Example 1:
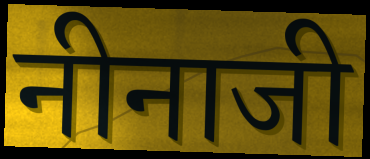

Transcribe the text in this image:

नीनाजी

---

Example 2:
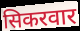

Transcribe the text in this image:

सिकरवार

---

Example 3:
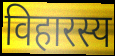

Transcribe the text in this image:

विहारस्य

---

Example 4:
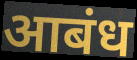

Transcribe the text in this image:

आबंध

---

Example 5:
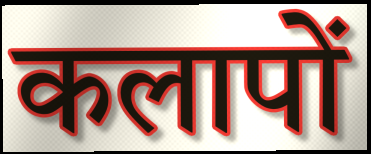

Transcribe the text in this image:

कलापों